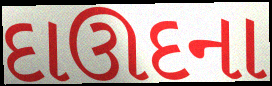
દાઊદના